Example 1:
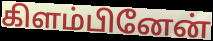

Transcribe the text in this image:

கிளம்பினேன்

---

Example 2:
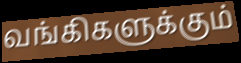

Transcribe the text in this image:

வங்கிகளுக்கும்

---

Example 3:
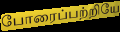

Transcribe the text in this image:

போரைப்பற்றியே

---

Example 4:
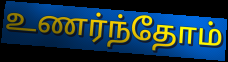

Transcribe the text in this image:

உணர்ந்தோம்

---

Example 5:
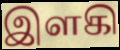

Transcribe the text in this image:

இளகி